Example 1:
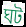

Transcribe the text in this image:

ঘট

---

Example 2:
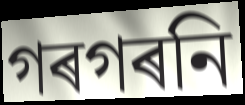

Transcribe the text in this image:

গৰগৰনি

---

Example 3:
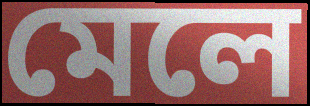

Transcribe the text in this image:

মেলে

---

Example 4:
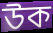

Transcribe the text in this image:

উক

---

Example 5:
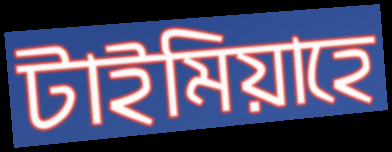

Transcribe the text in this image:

টাইমিয়াহে